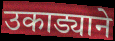
उकाड्याने